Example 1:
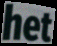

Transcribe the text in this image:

het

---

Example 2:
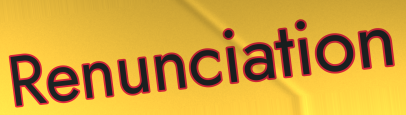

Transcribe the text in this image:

Renunciation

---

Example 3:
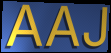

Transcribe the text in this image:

AAJ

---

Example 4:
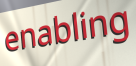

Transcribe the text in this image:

enabling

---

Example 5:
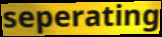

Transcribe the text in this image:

seperating